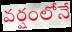
వర్షంలోనే